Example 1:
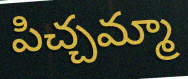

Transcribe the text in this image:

పిచ్చమ్మా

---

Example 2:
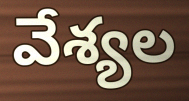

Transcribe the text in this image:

వేశ్యల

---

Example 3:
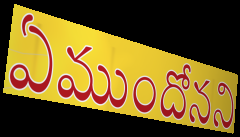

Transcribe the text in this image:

ఏముందోనని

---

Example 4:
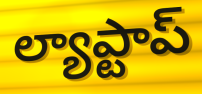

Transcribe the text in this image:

ల్యాప్టాప్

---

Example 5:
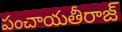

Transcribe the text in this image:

పంచాయతీరాజ్